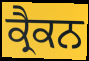
ਕ੍ਰੈਕਨ